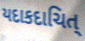
યદાકદાચિત્